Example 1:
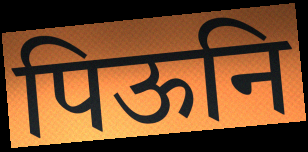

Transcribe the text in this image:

पिऊनि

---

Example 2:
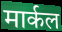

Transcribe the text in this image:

मार्कल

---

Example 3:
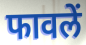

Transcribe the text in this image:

फावलें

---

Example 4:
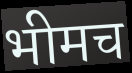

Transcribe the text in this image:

भीमच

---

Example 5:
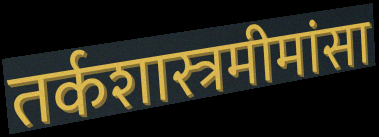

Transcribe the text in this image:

तर्कशास्त्रमीमांसा